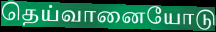
தெய்வானையோடு